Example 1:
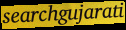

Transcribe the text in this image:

searchgujarati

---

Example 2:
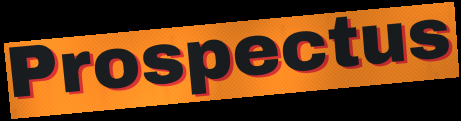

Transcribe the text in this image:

Prospectus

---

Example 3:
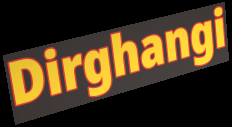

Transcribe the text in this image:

Dirghangi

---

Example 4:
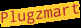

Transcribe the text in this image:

Plugzmart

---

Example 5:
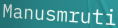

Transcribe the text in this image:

Manusmruti